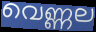
വെണ്ണല